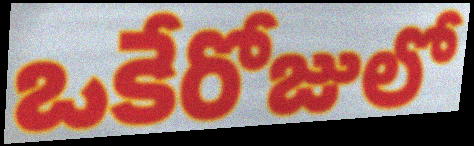
ఒకేరోజులో